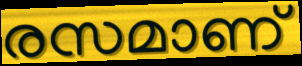
രസമാണ്